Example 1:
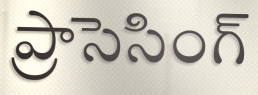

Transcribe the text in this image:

ప్రాసెసింగ్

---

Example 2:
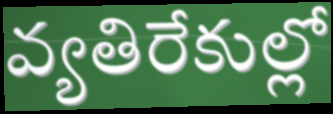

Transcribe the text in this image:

వ్యతిరేకుల్లో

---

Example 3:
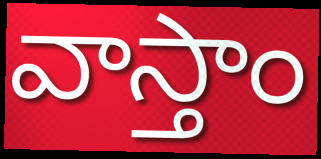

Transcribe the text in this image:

వాస్తాం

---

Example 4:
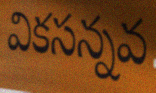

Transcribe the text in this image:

వికసన్నవ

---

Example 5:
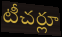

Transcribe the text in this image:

టీచర్లూ